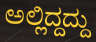
ಅಲ್ಲಿದ್ದದ್ದು